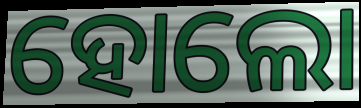
ହୋଲୋ